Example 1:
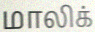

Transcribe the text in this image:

மாலிக்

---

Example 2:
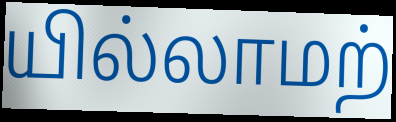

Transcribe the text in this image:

யில்லாமற்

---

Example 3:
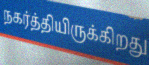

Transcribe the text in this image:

நகர்த்தியிருக்கிறது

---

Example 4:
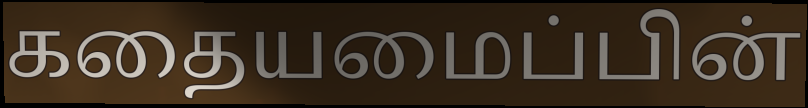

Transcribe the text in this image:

கதையமைப்பின்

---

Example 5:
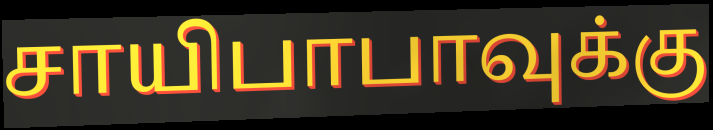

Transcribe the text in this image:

சாயிபாபாவுக்கு